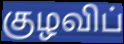
குழவிப்